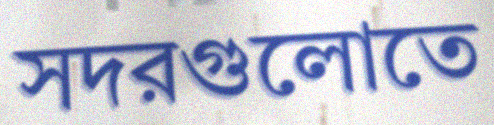
সদরগুলোতে